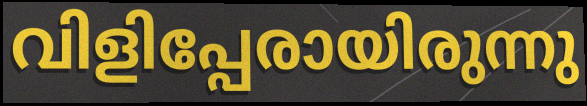
വിളിപ്പേരായിരുന്നു